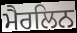
ਮੈਰਲਿਨ